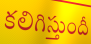
కలిగిస్తుందీ